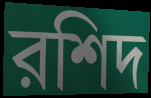
রশিদ